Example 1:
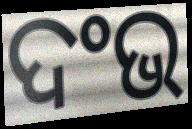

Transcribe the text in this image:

ଦଂଭ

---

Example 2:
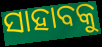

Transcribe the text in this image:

ସାହାବକୁ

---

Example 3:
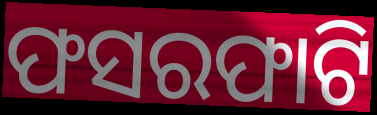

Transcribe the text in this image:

ଫସରଫାଟି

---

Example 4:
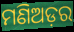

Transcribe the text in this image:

ମଣିଅଡ଼ର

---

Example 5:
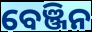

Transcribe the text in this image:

ବେଞ୍ଜିନ